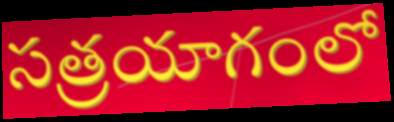
సత్రయాగంలో